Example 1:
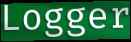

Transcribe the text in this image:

Logger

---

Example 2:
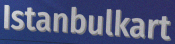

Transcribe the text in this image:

Istanbulkart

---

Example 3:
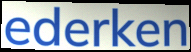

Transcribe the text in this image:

ederken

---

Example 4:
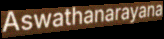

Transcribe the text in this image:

Aswathanarayana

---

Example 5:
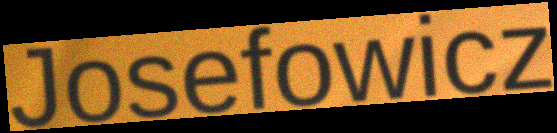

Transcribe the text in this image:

Josefowicz